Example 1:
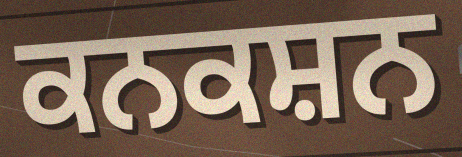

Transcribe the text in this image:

ਕਨਕਸ਼ਨ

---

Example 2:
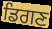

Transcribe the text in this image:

ਡਿਗਣ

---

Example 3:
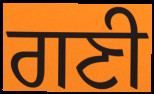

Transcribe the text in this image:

ਗਣੀ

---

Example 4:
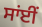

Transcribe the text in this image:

ਸਾਂਈਂ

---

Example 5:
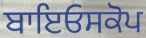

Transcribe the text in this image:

ਬਾਇਓਸਕੋਪ